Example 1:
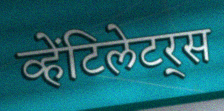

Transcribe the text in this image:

व्हेंटिलेटर्स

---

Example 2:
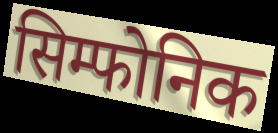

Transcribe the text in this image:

सिम्फोनिक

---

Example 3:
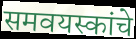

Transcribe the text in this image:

समवयस्कांचे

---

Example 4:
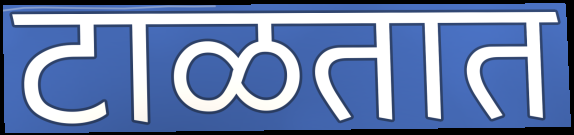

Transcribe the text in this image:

टाळतात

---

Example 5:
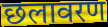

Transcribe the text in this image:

छलावरण